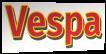
Vespa